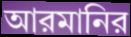
আরমানির